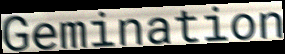
Gemination